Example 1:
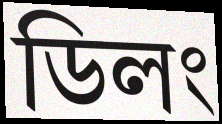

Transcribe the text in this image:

ডিলং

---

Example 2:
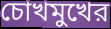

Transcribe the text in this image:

চোখমুখের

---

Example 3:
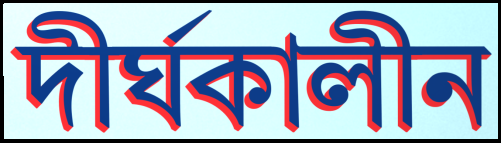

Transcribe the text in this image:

দীর্ঘকালীন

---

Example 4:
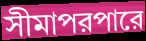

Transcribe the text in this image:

সীমাপরপারে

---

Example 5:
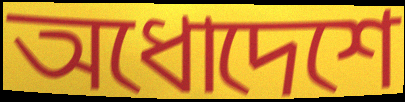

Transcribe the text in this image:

অধোদেশে